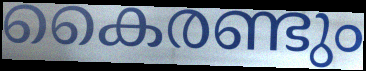
കൈരണ്ടും